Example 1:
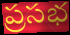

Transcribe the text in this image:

ప్రసభ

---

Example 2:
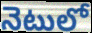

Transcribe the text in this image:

నెటులో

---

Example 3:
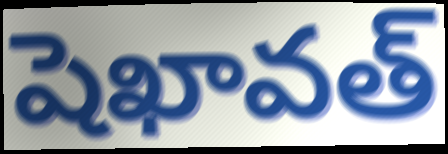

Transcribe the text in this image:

షెఖావత్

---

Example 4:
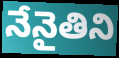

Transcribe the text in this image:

నేనైతిని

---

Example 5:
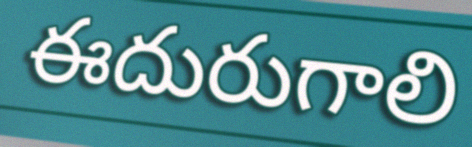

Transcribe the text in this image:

ఈదురుగాలి